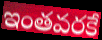
ఇంతవరకే